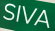
SIVA